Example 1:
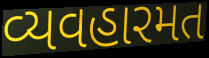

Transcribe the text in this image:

વ્યવહારમત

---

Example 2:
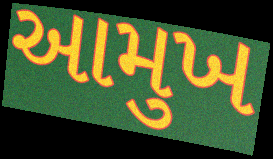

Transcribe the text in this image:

આમુખ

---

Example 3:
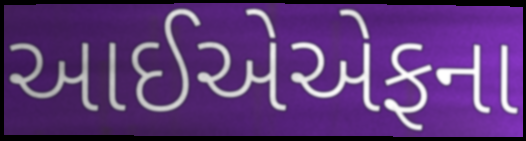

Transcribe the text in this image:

આઈએએફના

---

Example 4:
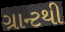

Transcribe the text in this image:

ગ્રાન્ટથી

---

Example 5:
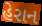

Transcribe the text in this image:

હેરાન